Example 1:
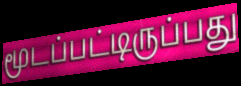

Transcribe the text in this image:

மூடப்பட்டிருப்பது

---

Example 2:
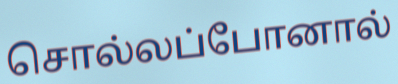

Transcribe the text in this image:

சொல்லப்போனால்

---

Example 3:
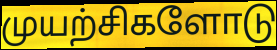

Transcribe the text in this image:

முயற்சிகளோடு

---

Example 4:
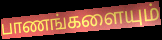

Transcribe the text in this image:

பாணங்களையும்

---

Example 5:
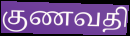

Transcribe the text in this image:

குணவதி